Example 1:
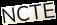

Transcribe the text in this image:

NCTE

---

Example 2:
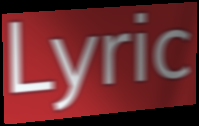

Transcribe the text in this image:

Lyric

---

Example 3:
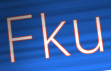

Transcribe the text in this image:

Fku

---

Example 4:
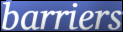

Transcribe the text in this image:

barriers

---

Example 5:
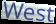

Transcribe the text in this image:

West